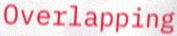
Overlapping